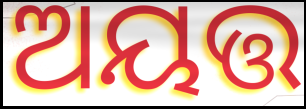
ଅୟତ୍ତ